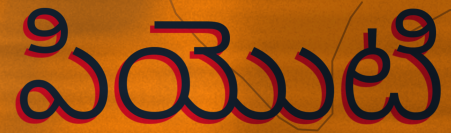
పియొటి